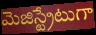
మెజిస్ట్రేటుగా